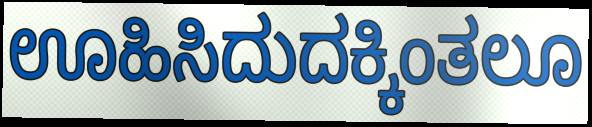
ಊಹಿಸಿದುದಕ್ಕಿಂತಲೂ